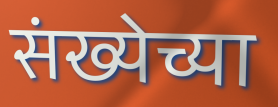
संख्येच्या